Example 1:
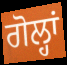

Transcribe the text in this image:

ਗੋਲ੍ਹਾਂ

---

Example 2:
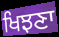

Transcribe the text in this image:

ਖਿਝਣਾ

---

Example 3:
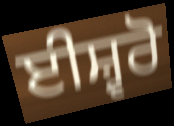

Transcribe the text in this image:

ਈਸ਼੍ਵਰੋ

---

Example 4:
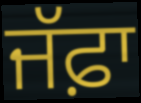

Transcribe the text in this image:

ਜੱਫ਼ਾ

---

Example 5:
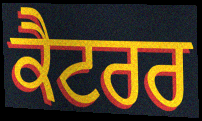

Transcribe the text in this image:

ਕੈਟਰਰ